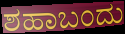
ಶಹಾಬಂದು